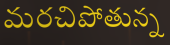
మరచిపోతున్న